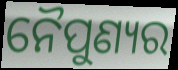
ନୈପୁଣ୍ୟର